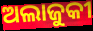
ଅଲାଜୁକୀ